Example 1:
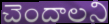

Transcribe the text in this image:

చెందాలని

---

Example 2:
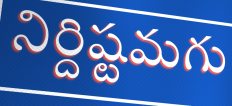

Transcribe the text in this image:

నిర్దిష్టమగు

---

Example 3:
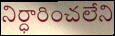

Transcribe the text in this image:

నిర్ధారించలేని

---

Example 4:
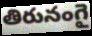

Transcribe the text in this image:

తిరునంగై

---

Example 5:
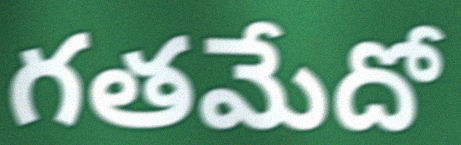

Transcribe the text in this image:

గతమేదో